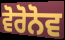
ਵੋਰੋਨੋਵ